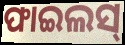
ଫାଇଲସ୍